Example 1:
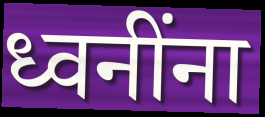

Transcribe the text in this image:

ध्वनींना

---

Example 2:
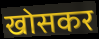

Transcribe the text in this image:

खोसकर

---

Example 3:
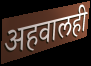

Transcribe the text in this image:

अहवालही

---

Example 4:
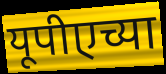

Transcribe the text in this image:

यूपीएच्या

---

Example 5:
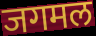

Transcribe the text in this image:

जगमल